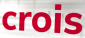
crois